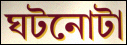
ঘটনোটা